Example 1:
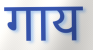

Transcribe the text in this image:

गाय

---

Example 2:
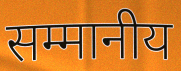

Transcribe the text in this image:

सम्मानीय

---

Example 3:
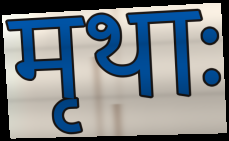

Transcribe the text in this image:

मृथाः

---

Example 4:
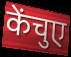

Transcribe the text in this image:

केंचुए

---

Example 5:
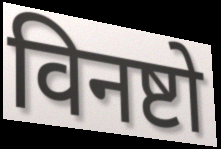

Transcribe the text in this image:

विनष्टो